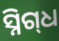
ସ୍ନିଗ୍‌ଧ